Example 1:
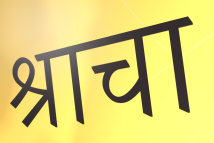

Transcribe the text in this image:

श्राचा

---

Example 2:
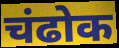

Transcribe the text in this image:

चंढोक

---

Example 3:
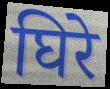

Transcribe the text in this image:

घिरे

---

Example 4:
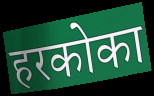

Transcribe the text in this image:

हरकोका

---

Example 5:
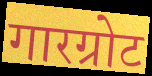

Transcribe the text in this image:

गारग्रोट